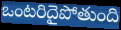
ఒంటరిదైపోతుంది